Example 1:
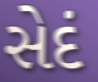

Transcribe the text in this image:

સેદં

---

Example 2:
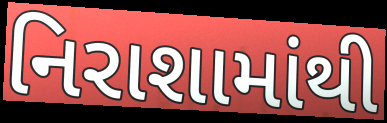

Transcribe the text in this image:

નિરાશામાંથી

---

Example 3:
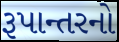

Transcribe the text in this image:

રૂપાન્તરનો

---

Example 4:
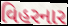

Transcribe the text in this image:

વિહરનાર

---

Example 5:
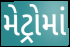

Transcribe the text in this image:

મેટ્રોમાં